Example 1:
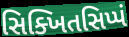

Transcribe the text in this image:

સિક્ખિતસિપ્પં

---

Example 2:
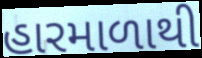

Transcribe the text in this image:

હારમાળાથી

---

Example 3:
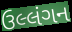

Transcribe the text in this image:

ઉલ્લંગન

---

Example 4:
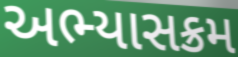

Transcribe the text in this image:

અભ્યાસક્રમ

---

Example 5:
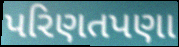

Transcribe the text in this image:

પરિણતપણા